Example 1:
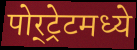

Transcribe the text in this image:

पोर्ट्रेटमध्ये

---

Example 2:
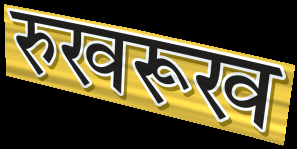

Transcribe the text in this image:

रुखरूख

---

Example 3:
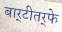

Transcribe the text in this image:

बार्टीतर्फे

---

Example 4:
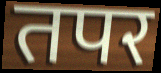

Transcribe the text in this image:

तपर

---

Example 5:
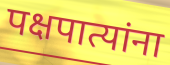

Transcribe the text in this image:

पक्षपात्यांना